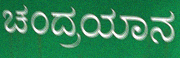
ಚಂದ್ರಯಾನ